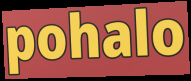
pohalo